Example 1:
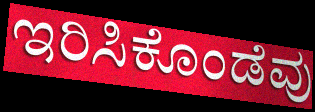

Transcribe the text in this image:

ಇರಿಸಿಕೊಂಡೆವು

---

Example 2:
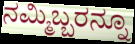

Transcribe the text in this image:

ನಮ್ಮಿಬ್ಬರನ್ನೂ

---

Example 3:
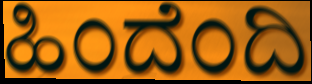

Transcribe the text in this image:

ಹಿಂದೆಂದಿ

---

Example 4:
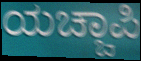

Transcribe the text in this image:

ಯಚ್ಚಾಪಿ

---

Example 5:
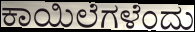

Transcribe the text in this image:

ಕಾಯಿಲೆಗಳೆಂದು